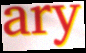
ary